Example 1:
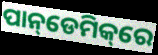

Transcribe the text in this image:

ପାନ୍‌ଡେମିକ୍‌ରେ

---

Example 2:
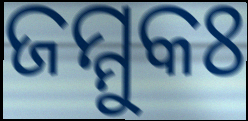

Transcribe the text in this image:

ଜମ୍ମୁକଃ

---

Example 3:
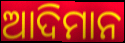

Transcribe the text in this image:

ଆଦିମାନ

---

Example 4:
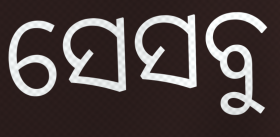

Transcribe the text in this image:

ସେସବୁ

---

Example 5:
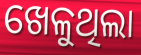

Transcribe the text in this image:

ଖେଳୁଥିଲା